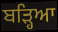
ਬੜ੍ਹਿਆ